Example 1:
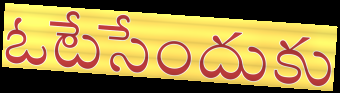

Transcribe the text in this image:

ఓటేసేందుకు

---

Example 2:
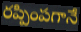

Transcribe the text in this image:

రప్పింపగానే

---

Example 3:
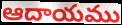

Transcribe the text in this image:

ఆదాయము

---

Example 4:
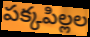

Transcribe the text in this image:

పక్కపిల్లల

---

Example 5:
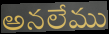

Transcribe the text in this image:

అనలేము